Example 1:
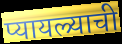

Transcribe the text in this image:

प्यायल्याची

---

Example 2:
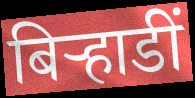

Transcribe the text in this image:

बिर्‍हाडीं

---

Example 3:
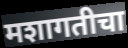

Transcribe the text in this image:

मशागतीचा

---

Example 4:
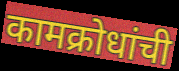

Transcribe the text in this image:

कामक्रोधांची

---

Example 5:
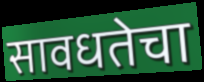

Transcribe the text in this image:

सावधतेचा